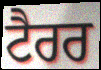
ਟੈਰਰ